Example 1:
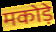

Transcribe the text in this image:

मकोड़े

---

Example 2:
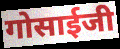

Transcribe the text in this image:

गोसाईजी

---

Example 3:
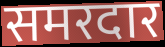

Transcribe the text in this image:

समरदार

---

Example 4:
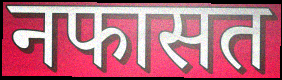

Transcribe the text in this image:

नफासत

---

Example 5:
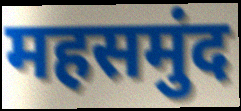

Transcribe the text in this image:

महसमुंद